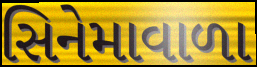
સિનેમાવાળા